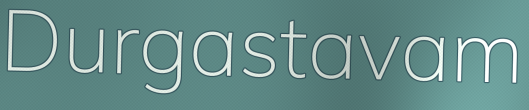
Durgastavam